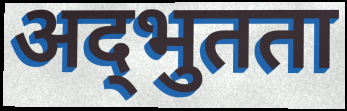
अद्‌भुतता